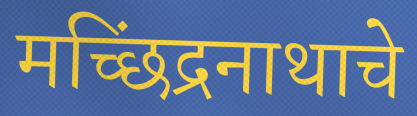
मच्छिंद्रनाथाचे